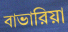
বাভারিয়া